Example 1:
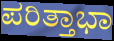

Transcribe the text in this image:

ಪರಿತ್ತಾಭಾ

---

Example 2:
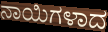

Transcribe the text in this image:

ನಾಯಿಗಳಾದ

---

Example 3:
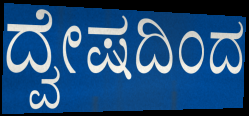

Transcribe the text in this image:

ದ್ವೇಷದಿಂದ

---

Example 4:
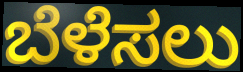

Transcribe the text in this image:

ಬೆಳೆಸಲು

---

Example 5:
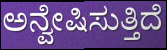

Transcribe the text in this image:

ಅನ್ವೇಷಿಸುತ್ತಿದೆ